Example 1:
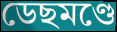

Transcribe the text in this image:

ডেছমণ্ডে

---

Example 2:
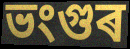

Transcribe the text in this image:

ভংগুৰ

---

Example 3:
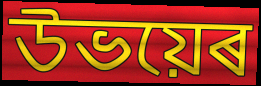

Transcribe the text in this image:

উভয়েৰ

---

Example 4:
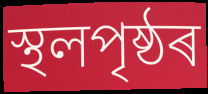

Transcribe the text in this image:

স্থলপৃষ্ঠৰ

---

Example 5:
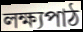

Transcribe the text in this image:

লক্ষ্যপাঠ